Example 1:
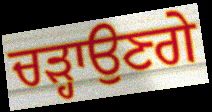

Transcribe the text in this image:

ਚੜ੍ਹਾਉਣਗੇ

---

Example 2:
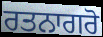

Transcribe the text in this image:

ਰਤਨਾਗਰੋ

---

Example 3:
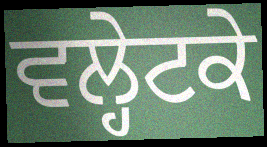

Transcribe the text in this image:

ਵਲ੍ਹੇਟਕੇ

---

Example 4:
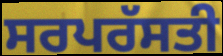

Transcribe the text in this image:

ਸਰਪਰੱਸਤੀ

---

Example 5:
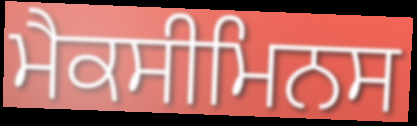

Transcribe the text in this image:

ਮੈਕਸੀਮਿਨਸ